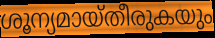
ശൂന്യമായ്തീരുകയും